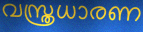
വസ്ത്രധാരണ